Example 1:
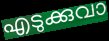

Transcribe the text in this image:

എടുക്കുവാ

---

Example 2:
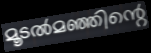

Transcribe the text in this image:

മൂടൽമഞ്ഞിന്റെ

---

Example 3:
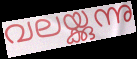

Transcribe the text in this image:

വലയ്ക്കുന്നു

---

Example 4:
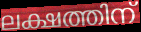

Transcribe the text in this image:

ലക്ഷത്തിന്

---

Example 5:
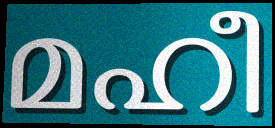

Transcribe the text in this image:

മഹീ